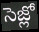
సెజ్లో